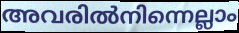
അവരിൽനിന്നെല്ലാം